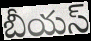
బీయస్